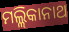
ମଲ୍ଲିକାନାଥ